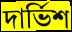
দার্ভিশ